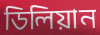
ডিলিয়ান